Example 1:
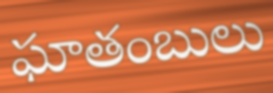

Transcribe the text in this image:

ఘాతంబులు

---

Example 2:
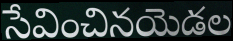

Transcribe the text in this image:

సేవించినయెడల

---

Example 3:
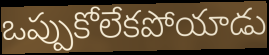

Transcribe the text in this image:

ఒప్పుకోలేకపోయాడు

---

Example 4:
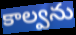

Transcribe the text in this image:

కాల్వను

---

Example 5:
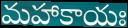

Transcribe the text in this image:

మహాకాయః